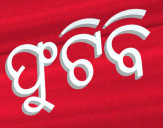
ଫୁଟିବି